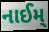
નાઈમ્